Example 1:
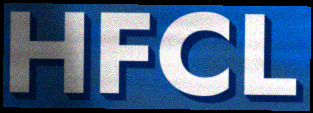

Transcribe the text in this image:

HFCL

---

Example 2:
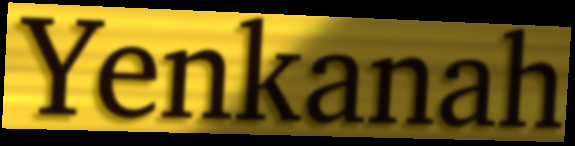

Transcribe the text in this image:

Yenkanah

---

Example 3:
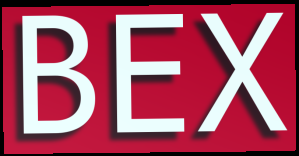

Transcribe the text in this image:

BEX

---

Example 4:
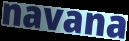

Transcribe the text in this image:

navana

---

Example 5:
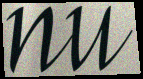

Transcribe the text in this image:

nu